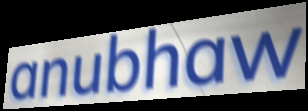
anubhaw